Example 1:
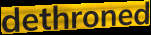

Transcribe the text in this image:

dethroned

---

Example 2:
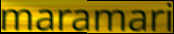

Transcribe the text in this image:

maramari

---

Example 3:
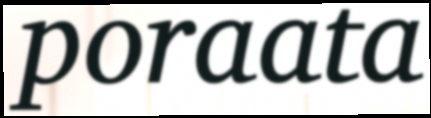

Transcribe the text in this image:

poraata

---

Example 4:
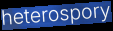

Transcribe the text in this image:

heterospory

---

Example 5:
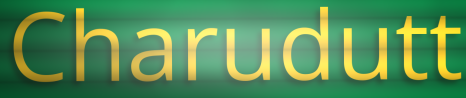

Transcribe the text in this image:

Charudutt